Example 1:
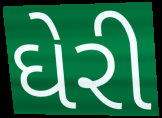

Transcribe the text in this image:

ઘેરી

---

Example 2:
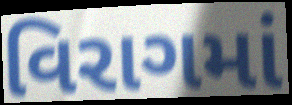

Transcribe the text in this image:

વિરાગમાં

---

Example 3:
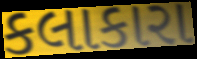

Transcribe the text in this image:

કલાકારા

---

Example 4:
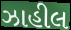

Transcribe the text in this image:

ઝાહીલ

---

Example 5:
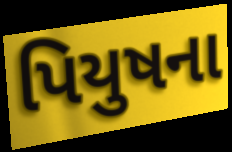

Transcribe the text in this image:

પિયુષના